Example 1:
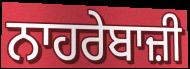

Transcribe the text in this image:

ਨਾਹਰੇਬਾਜ਼ੀ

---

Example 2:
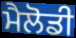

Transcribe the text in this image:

ਮੈਲੋਡੀ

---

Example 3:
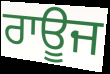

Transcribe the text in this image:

ਰਾਊਜ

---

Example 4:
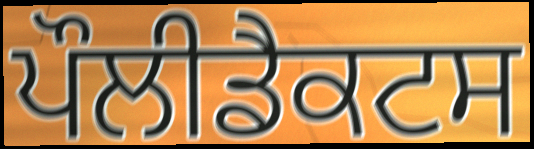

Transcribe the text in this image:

ਪੌਲੀਡੈਕਟਸ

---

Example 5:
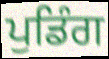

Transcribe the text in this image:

ਪੁਡਿੰਗ